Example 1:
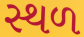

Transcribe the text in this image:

સ્થળ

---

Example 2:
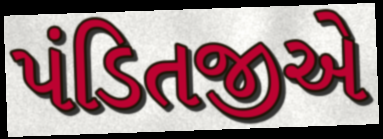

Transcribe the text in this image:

પંડિતજીએ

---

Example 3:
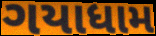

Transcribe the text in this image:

ગયાધામ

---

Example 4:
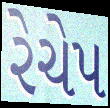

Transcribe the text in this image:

રેચેપ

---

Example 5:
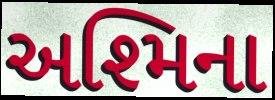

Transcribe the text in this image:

અશ્મિના